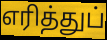
எரித்துப்